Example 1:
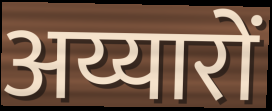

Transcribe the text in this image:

अय्यारों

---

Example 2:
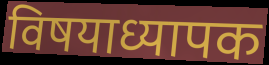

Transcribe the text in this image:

विषयाध्यापक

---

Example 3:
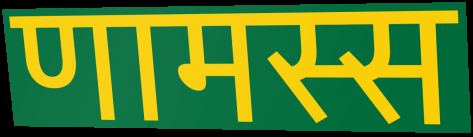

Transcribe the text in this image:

णामस्स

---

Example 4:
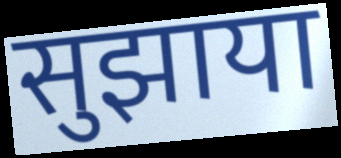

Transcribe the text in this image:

सुझाया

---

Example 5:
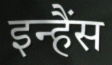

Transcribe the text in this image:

इन्हैंस